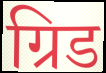
ग्रिड